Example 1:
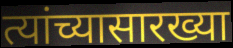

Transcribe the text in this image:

त्यांच्यासारख्या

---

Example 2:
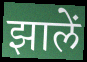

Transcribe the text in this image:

झालें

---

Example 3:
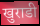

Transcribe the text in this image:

खुराडी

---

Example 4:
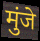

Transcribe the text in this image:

मुंजे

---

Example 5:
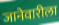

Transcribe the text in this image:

जानेवारीला